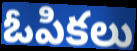
ఓపికలు